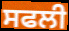
ਸਫਲੀ